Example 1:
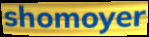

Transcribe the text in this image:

shomoyer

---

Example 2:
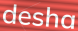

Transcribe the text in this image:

desha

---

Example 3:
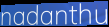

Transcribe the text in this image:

nadanthu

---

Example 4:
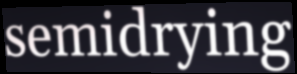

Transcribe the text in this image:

semidrying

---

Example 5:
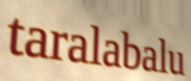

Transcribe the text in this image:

taralabalu